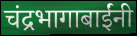
चंद्रभागाबाईंनी